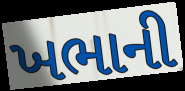
ખભાની